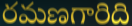
రమణగారిది